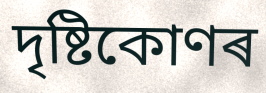
দৃষ্টিকোণৰ